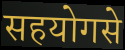
सहयोगसे